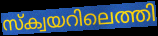
സ്ക്വയറിലെത്തി